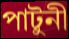
পাটুনী